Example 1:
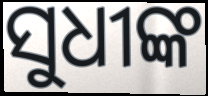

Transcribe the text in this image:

ସୁଧୀଙ୍କ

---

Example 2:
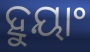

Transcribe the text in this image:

ହୁୟାଂ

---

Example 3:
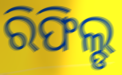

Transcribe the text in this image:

ରିଫିଲ୍ଡ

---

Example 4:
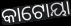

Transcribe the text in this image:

କାଟୋୟା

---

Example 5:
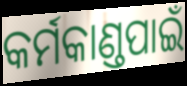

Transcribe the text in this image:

କର୍ମକାଣ୍ଡପାଇଁ